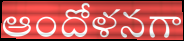
ఆందోళనగా